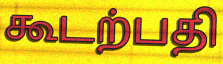
கூடற்பதி